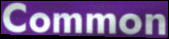
Common